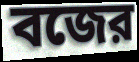
বজের